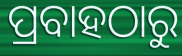
ପ୍ରବାହଠାରୁ